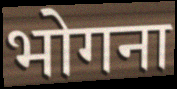
भोगना